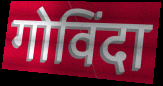
गोविंदा